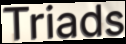
Triads